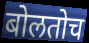
बोलतोच